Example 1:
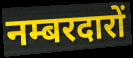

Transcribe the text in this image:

नम्बरदारों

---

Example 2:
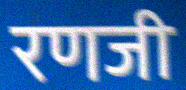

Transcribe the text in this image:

रणजी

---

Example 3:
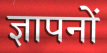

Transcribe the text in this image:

ज्ञापनों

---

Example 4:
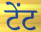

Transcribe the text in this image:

टेंट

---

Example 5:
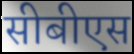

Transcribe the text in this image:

सीबीएस